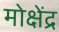
मोक्षेंद्र